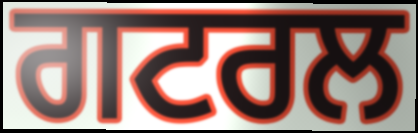
ਗਟਰਲ